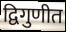
द्विगुणीत